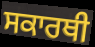
ਸਕਾਰਥੀ